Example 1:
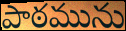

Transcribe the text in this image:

పాఠమును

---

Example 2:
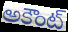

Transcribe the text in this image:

అకౌంట్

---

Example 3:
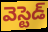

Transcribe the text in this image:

వెస్టెడ్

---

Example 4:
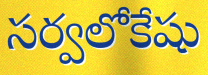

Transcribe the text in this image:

సర్వలోకేషు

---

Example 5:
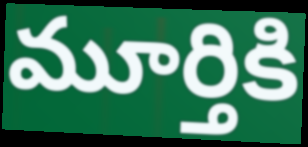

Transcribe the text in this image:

మూర్తికి